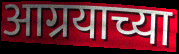
आग्रयाच्या